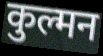
कुल्मन